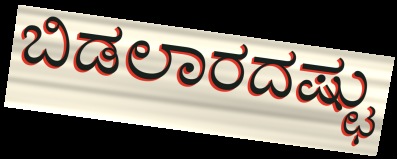
ಬಿಡಲಾರದಷ್ಟು